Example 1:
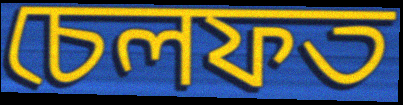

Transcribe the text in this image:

চেলফত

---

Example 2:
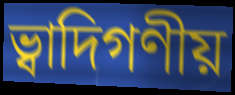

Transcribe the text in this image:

ভ্বাদিগণীয়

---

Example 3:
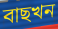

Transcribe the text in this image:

বাছখন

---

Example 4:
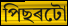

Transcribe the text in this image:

পিছৰটো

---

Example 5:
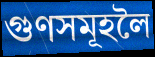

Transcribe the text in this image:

গুণসমূহলৈ